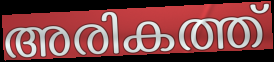
അരികത്ത്